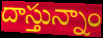
దాస్తున్నాం